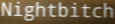
Nightbitch